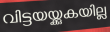
വിട്ടയയ്ക്കുകയില്ല